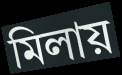
মিলায়